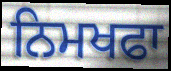
ਨਿਮਖਫਾ